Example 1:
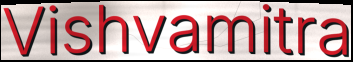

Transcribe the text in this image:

Vishvamitra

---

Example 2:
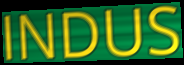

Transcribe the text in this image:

INDUS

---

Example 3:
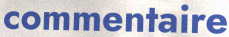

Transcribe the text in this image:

commentaire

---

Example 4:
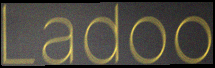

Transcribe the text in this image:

Ladoo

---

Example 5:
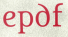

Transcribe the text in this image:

epdf